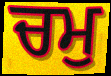
ਚਮੁ